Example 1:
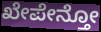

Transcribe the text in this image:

ಖೇಪೇನ್ತೋ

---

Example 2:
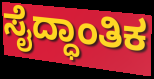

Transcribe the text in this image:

ಸೈದ್ಧಾಂತಿಕ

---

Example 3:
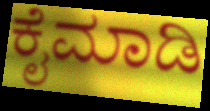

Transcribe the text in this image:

ಕೈಮಾಡಿ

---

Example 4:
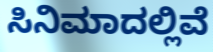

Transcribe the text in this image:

ಸಿನಿಮಾದಲ್ಲಿವೆ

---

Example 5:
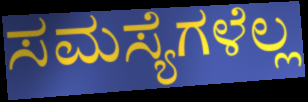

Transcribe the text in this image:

ಸಮಸ್ಯೆಗಳೆಲ್ಲ